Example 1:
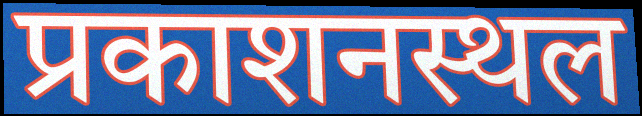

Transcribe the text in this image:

प्रकाशनस्थल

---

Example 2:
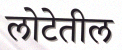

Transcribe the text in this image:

लोटेतील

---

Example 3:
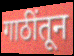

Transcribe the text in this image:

गाठींतून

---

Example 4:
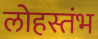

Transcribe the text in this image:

लोहस्तंभ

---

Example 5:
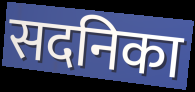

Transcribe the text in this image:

सदनिका